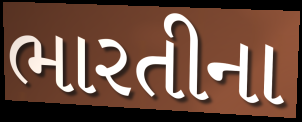
ભારતીના